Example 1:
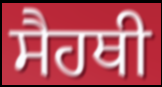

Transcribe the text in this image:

ਸੈਹਥੀ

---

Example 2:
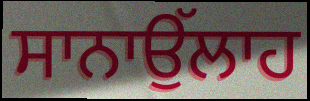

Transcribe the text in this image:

ਸਾਨਾਉੱਲਾਹ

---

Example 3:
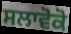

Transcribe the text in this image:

ਸਲਾਵੋਕੋ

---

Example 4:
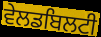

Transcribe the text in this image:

ਵੇਲਡਬਿਲਟੀ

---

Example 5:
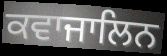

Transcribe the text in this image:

ਕਵਾਜਾਲਿਨ